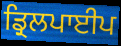
ਡ੍ਰਿਲਪਾਈਪ